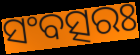
ସଂବତ୍ସରଃ